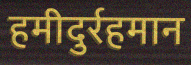
हमीदुर्रहमान